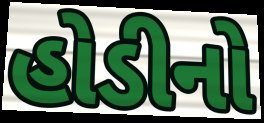
હોડીનો